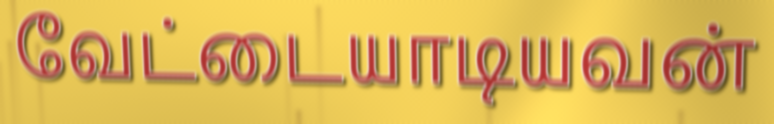
வேட்டையாடியவன்